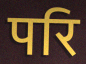
परि